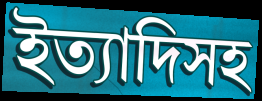
ইত্যাদিসহ